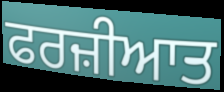
ਫਰਜ਼ੀਆਤ